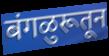
बंगळुरूतून